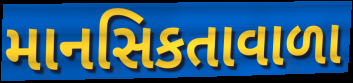
માનસિકતાવાળા